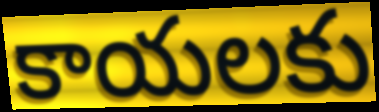
కాయలకు